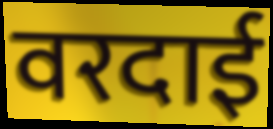
वरदाई